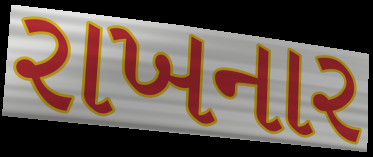
રાખનાર